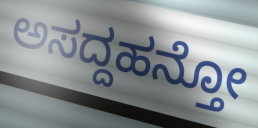
ಅಸದ್ದಹನ್ತೋ